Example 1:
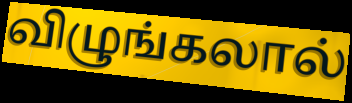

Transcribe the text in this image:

விழுங்கலால்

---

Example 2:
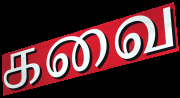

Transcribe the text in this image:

கவை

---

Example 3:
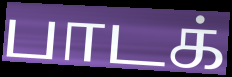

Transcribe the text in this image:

பாடக்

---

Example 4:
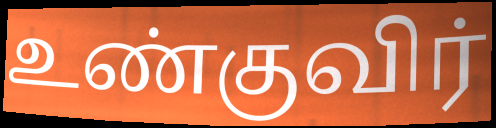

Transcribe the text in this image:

உண்குவிர்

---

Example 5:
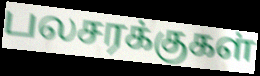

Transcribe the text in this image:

பலசரக்குகள்